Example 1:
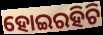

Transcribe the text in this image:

ହୋଇରହିଚି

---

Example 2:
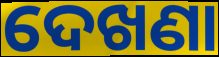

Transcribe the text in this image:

ଦେଖଣା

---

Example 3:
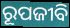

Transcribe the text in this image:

ରୂପଜୀବି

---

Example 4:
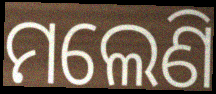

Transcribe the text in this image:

ମଲେଣି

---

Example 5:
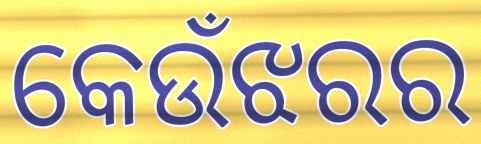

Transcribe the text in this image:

କେଉଁଝରର